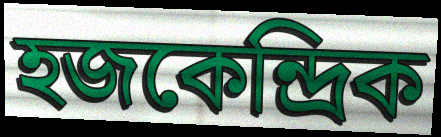
হজকেন্দ্রিক